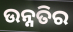
ଉନ୍ନତିର